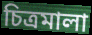
চিত্রমালা